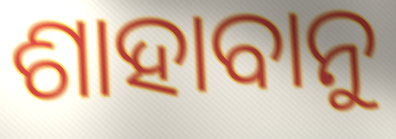
ଶାହାବାନୁ